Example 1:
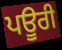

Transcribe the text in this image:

ਪਊਰੀ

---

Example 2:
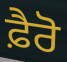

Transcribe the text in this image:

ਫ਼ੈਰੋ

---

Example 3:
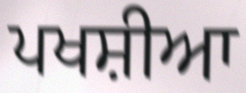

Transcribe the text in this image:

ਪਖਸ਼ੀਆ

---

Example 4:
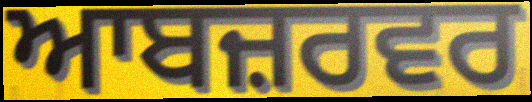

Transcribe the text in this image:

ਆਬਜ਼ਰਵਰ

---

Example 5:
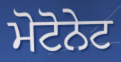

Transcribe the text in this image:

ਮੋਟੋਨੇਟ